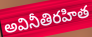
అవినీతిరహిత